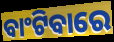
ବାଂଟିବାରେ